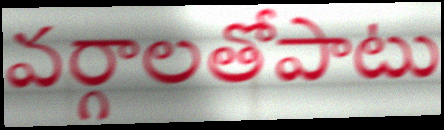
వర్గాలతోపాటు